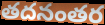
తదనంతర